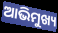
ଆଭିମୁଖ୍ୟ